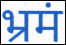
भ्रमं